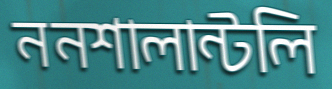
ননশালান্টলি